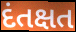
દંતક્ષત